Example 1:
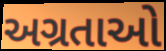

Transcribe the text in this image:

અગ્રતાઓ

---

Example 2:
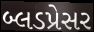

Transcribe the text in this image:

બ્લડપ્રેસર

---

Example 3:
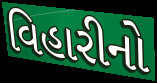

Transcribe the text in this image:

વિહારીનો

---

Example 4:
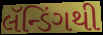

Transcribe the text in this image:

લૅન્ડિંગથી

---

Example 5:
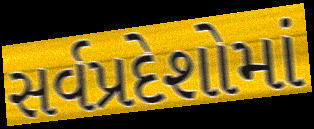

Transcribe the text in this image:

સર્વપ્રદેશોમાં